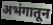
अभंगातून